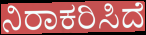
ನಿರಾಕರಿಸಿದೆ